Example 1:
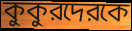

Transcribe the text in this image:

কুকুরদেরকে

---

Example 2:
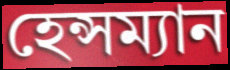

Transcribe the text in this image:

হেন্সম্যান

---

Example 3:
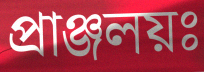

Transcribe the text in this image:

প্রাঞ্জলয়ঃ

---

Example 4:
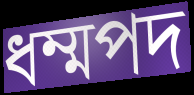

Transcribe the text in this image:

ধম্মপদ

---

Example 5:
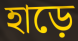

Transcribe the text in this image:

হাড়ে